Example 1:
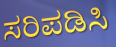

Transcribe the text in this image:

ಸರಿಪಡಿಸಿ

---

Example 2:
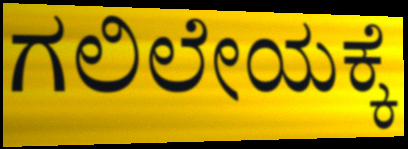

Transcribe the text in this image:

ಗಲಿಲೇಯಕ್ಕೆ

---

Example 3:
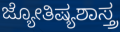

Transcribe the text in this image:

ಜ್ಯೋತಿಷ್ಯಶಾಸ್ತ್ರ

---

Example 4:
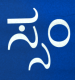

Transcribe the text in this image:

ಸ್ಸಂ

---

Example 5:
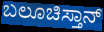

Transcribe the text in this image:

ಬಲೂಚಿಸ್ತಾನ್